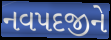
નવપદજીને